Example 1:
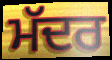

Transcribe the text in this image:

ਮੱਦਰ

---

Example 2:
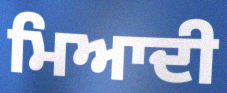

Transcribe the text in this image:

ਮਿਆਦੀ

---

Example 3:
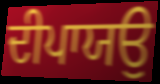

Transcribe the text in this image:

ਦੀਪਾਯਉ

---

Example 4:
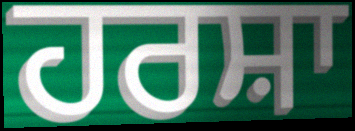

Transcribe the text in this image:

ਹਰਸ਼ਾ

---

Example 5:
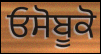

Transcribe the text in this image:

ਓਸੋਬੂਕੋ